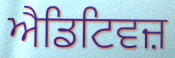
ਐਡਿਟਿਵਜ਼